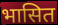
भासित